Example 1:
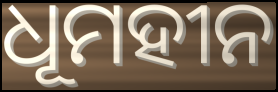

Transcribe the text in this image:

ଧୂମହୀନ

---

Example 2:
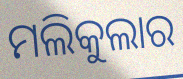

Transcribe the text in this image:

ମଲିକୁଲାର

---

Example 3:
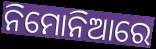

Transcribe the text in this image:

ନିମୋନିଆରେ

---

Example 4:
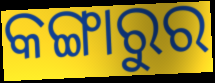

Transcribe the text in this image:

କଙ୍ଗାରୁର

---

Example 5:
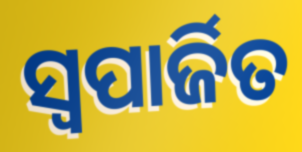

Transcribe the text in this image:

ସ୍ଵପାର୍ଜିତ